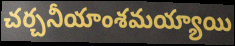
చర్చనీయాంశమయ్యాయి